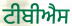
ਟੀਬੀਐਸ